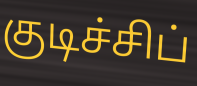
குடிச்சிப்